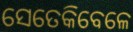
ସେତେକିବେଳେ